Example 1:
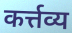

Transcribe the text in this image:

कर्त्तव्य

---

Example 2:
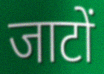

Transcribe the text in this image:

जाटों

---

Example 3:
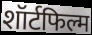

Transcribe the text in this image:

शॉर्टफिल्म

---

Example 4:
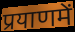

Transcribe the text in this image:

प्रयाणमें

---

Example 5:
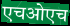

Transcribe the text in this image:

एचओएच